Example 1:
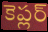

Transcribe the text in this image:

కెప్లర్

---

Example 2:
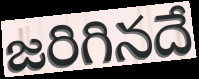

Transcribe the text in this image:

జరిగినదే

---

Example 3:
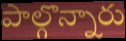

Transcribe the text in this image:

పాల్గొన్నారు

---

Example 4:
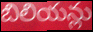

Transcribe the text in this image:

బిలియన్లు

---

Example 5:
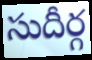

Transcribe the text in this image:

సుదీర్గ